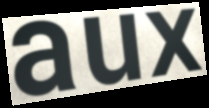
aux